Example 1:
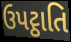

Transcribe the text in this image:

ઉપટ્ઠાતિ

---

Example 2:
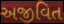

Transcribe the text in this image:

અજીવિત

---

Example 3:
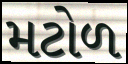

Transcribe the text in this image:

મટોળ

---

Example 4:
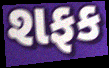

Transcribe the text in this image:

શફક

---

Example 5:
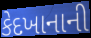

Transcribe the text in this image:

કેદખાનાની